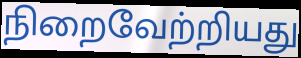
நிறைவேற்றியது